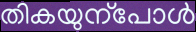
തികയുന്പോൾ